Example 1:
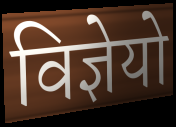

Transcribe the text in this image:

विज्ञेयो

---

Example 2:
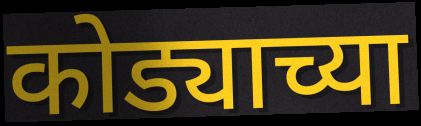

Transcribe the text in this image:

कोड्याच्या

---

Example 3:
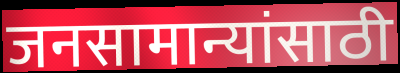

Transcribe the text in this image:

जनसामान्यांसाठी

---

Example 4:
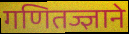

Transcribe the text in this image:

गणितज्ज्ञाने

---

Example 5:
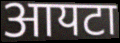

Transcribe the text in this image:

आयटा